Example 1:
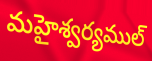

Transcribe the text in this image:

మహైశ్వర్యముల్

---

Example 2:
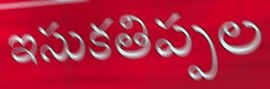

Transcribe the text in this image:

ఇసుకతిప్పల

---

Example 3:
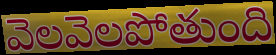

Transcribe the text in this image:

వెలవెలపోతుంది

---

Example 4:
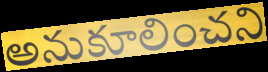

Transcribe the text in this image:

అనుకూలించని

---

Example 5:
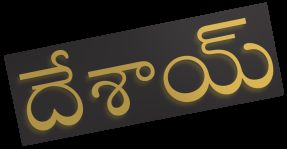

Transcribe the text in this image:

దేశాయ్